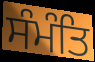
ਸੰਮੰਤਿ